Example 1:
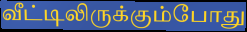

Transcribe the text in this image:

வீட்டிலிருக்கும்போது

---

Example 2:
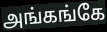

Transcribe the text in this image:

அங்கங்கே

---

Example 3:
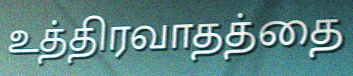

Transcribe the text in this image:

உத்திரவாதத்தை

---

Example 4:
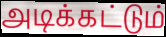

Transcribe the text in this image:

அடிக்கட்டும்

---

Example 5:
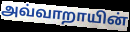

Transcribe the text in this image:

அவ்வாறாயின்